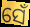
ସେଁ